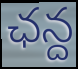
ఛన్ద